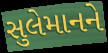
સુલેમાનને